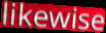
likewise